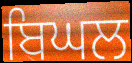
ਬਿਘਲ